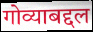
गोव्याबद्दल